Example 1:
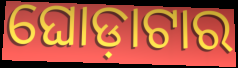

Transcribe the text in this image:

ଘୋଡ଼ାଟାର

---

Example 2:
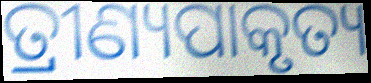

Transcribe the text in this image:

ତ୍ରୀଣ୍ୟପାକୃତ୍ୟ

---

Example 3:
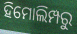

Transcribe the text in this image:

ହିମୋଲିମ୍ପରୁ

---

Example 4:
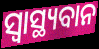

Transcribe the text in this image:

ସ୍ୱାସ୍ଥ୍ୟବାନ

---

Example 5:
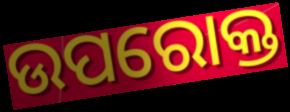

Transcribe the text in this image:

ଉପରୋକ୍ତ